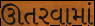
ઊતરવામાં